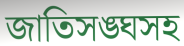
জাতিসঙ্ঘসহ